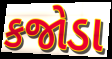
કજોડા